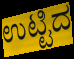
ಉಟ್ಟಿದ